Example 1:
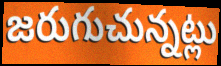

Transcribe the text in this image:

జరుగుచున్నట్లు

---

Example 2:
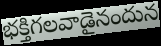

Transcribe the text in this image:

భక్తిగలవాడైనందున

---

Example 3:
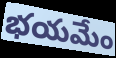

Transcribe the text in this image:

భయమేం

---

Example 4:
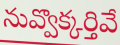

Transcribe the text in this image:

నువ్వొక్కర్తివే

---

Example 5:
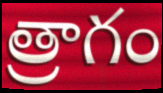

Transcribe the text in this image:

త్రాగం